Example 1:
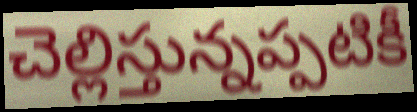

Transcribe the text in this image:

చెల్లిస్తున్నప్పటికీ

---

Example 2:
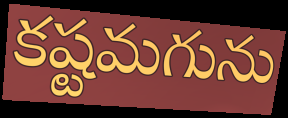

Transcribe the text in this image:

కష్టమగును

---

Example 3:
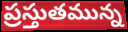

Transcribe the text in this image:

ప్రస్తుతమున్న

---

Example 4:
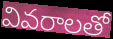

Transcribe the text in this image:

వివరాలతో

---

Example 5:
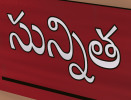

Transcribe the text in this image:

సున్నిత